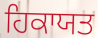
ਹਿਕਾਯਤ